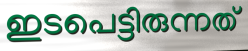
ഇടപെട്ടിരുന്നത്